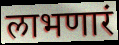
लाभणारं